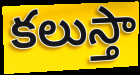
కలుస్తా